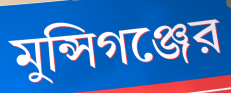
মুন্সিগঞ্জের